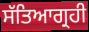
ਸੱਤਿਆਗ੍ਰਹੀ